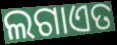
ଲଗାଏତ